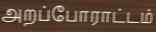
அறப்போராட்டம்